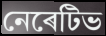
নেৰেটিভ